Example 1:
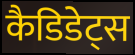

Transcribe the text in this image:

कैडिडेट्स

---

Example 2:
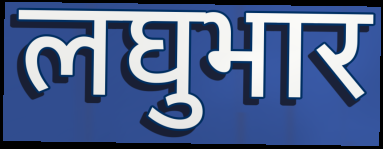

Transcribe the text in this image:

लघुभार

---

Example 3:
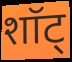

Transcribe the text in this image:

शॉट्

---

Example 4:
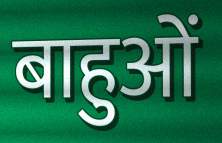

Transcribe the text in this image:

बाहुओं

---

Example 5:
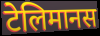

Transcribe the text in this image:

टेलिमानस